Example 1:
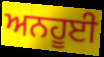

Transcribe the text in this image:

ਅਨਹੂਈ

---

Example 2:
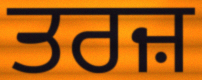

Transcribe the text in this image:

ਤਰਜ਼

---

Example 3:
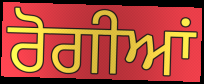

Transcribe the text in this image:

ਰੋਗੀਆਂ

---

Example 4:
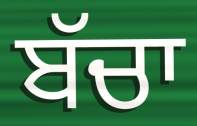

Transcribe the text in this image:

ਬੱਚਾ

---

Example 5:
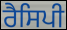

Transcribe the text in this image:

ਰੈਸਿਪੀ